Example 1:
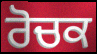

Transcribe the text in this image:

ਰੋਚਕ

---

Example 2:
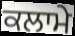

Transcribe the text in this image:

ਕਲਾਮੇ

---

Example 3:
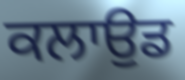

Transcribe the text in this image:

ਕਲਾਉਡ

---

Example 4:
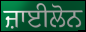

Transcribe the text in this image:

ਜ਼ਾਈਲੋਨ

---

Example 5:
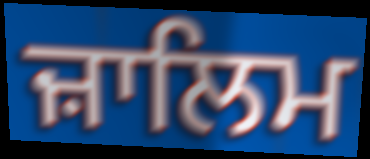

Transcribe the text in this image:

ਜ਼ਾਲਿਮ